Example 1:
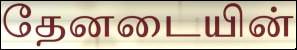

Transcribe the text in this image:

தேனடையின்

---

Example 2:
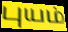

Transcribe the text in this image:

புயம்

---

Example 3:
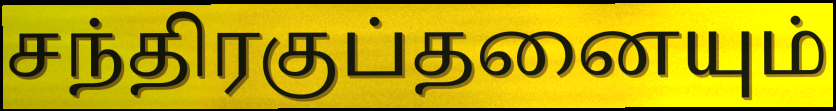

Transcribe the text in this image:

சந்திரகுப்தனையும்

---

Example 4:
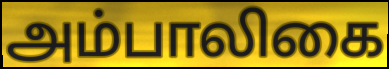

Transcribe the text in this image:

அம்பாலிகை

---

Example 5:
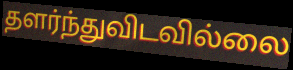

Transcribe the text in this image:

தளர்ந்துவிடவில்லை